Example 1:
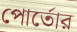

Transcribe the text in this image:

পোর্তোর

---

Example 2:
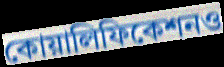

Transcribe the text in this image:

কোয়ালিফিকেশনও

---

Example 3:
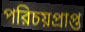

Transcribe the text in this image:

পরিচয়প্রাপ্ত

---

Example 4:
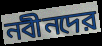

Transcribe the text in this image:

নবীনদের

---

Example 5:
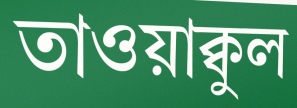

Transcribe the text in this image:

তাওয়াক্বুল